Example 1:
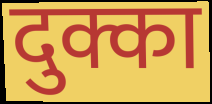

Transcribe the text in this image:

दुक्का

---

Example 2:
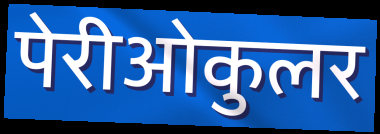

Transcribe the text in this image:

पेरीओकुलर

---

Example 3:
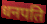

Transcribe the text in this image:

धनपति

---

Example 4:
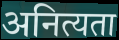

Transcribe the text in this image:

अनित्यता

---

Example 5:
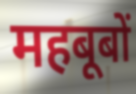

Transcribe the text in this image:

महबूबों